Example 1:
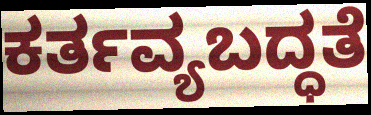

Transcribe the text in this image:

ಕರ್ತವ್ಯಬದ್ಧತೆ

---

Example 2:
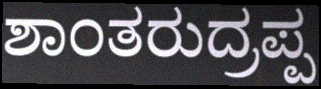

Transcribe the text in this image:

ಶಾಂತರುದ್ರಪ್ಪ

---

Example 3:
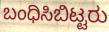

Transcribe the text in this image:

ಬಂಧಿಸಿಬಿಟ್ಟರು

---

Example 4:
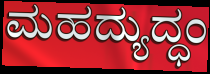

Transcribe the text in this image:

ಮಹದ್ಯುದ್ಧಂ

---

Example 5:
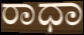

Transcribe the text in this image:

ರಾಧಾ